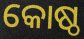
କୋଷ୍ଠ